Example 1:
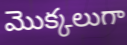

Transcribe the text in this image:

మొక్కలుగా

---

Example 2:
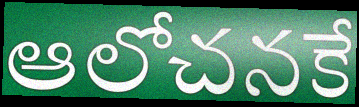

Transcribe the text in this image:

ఆలోచనకే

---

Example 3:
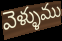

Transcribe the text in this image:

వెళ్ళుము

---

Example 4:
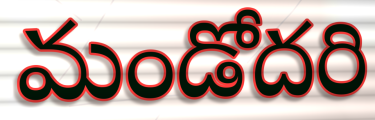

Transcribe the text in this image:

మండోదరి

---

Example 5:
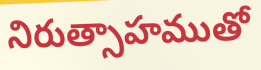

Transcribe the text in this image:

నిరుత్సాహముతో